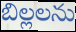
బిల్లలను